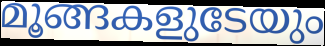
മൂങ്ങകളുടേയും